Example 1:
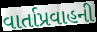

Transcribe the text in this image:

વાર્તાપ્રવાહની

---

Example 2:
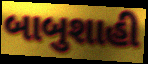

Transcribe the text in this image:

બાબુશાહી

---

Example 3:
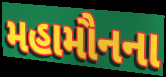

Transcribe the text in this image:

મહામૌનના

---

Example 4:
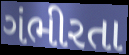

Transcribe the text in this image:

ગંભીરતા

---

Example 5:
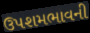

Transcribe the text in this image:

ઉપશમભાવની